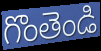
గొంతెండి